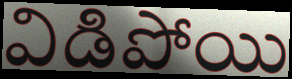
విడిపోయి